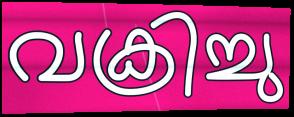
വക്രിച്ചു